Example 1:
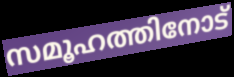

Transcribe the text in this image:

സമൂഹത്തിനോട്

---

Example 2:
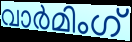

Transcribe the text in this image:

വാർമിംഗ്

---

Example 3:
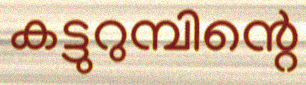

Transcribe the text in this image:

കട്ടുറുമ്പിന്റെ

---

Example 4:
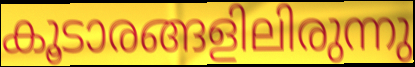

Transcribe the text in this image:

കൂടാരങ്ങളിലിരുന്നു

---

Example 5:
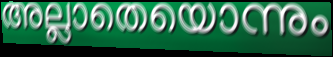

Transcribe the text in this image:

അല്ലാതെയൊന്നും